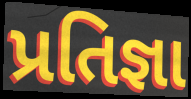
પ્રતિજ્ઞા